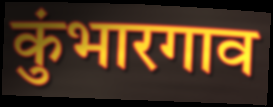
कुंभारगाव